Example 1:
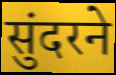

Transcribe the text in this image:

सुंदरने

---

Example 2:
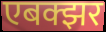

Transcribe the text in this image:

एबक्झर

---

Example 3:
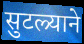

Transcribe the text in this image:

सुटल्याने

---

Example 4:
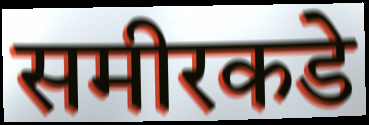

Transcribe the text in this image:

समीरकडे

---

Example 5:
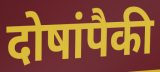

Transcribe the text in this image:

दोषांपैकी